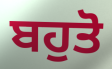
ਬਹੁਤੋ